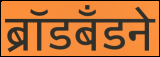
ब्रॉडबँडने